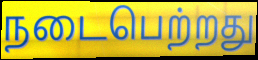
நடைபெற்றது